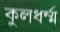
কুলধর্ম্ম